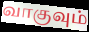
வாகுவும்